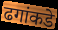
ढगांकडे